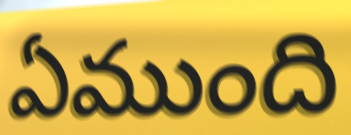
ఏముంది